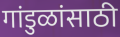
गांडुळांसाठी